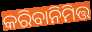
କରିବାନିମିତ୍ତ